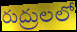
రుద్రులలో